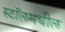
स्टॉलमधील